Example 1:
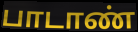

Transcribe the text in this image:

பாடாண்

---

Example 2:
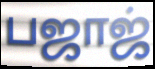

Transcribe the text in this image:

பஜாஜ்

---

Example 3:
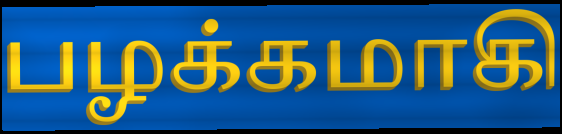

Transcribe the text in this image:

பழக்கமாகி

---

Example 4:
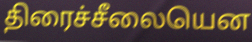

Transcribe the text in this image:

திரைச்சீலையென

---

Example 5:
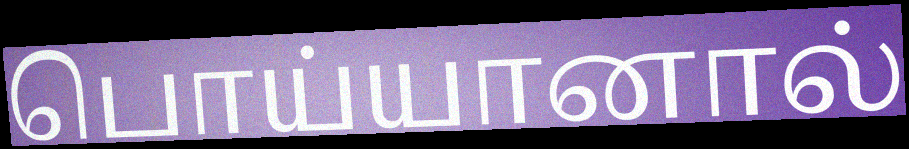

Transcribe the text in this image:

பொய்யானால்